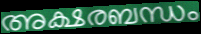
അക്ഷരബന്ധം